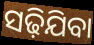
ସଢ଼ିଯିବା